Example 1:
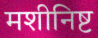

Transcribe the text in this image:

मशीनिष्ट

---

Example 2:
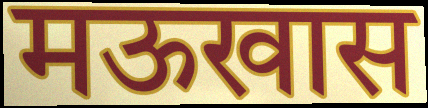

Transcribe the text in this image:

मऊखास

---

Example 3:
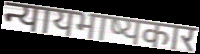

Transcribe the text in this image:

न्यायभाष्यकार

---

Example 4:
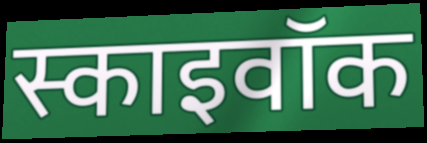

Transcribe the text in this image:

स्काइवॉक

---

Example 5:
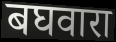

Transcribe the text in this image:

बघवारा